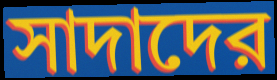
সাদাদের